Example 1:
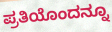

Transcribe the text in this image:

ಪ್ರತಿಯೊಂದನ್ನೂ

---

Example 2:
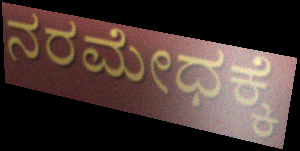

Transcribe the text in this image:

ನರಮೇಧಕ್ಕೆ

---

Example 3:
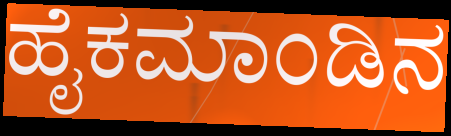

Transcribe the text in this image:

ಹೈಕಮಾಂಡಿನ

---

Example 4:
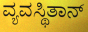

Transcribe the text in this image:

ವ್ಯವಸ್ಥಿತಾನ್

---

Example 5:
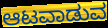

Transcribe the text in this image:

ಆಟವಾಡುವ